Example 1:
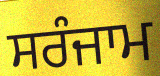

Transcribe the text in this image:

ਸਰੰਜਾਮ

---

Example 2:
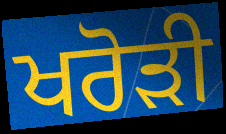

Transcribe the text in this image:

ਖਰੋੜੀ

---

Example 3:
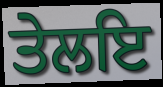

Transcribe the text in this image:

ਤੇਲਇ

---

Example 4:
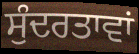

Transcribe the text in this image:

ਸੁੰਦਰਤਾਵਾਂ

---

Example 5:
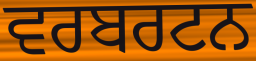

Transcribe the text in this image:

ਵਰਬਰਟਨ